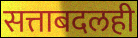
सत्ताबदलही